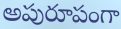
అపురూపంగా